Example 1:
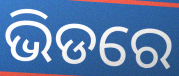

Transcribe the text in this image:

ଭିଡରେ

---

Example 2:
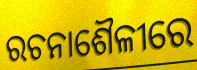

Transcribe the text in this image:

ରଚନାଶୈଳୀରେ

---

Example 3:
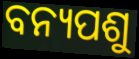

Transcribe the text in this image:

ବନ୍ୟପଶୁ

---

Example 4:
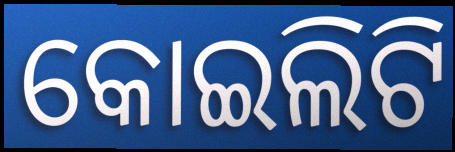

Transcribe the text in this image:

କୋଇଲିଟି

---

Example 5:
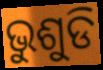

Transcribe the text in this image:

ଭୁଶୁଡି